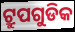
ଟ୍ରୁପଗୁଡିକ